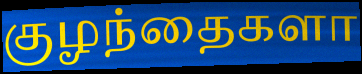
குழந்தைகளா